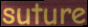
suture